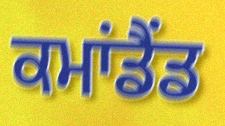
ਕਮਾਂਡੈਂਡ